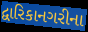
દ્વારિકાનગરીના